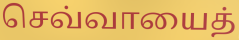
செவ்வாயைத்